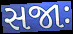
સજાઃ